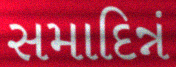
સમાદિન્નં